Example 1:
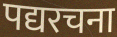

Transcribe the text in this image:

पद्यरचना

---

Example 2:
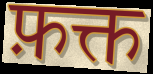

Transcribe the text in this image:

फ़क्त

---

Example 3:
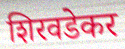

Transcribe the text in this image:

शिरवडेकर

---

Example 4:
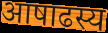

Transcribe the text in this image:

आषाढस्य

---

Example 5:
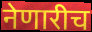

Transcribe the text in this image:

नेणारीच